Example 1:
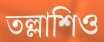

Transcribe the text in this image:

তল্লাশিও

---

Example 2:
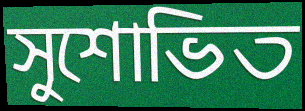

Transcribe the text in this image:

সুশোভিত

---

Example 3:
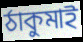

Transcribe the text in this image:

ঠাকুমাই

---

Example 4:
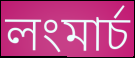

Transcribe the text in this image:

লংমার্চ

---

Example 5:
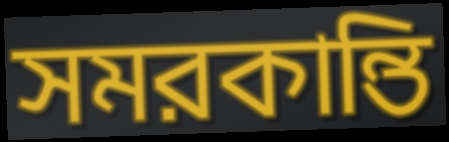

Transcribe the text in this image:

সমরকান্তি